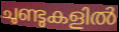
ചുണ്ടുകളിൽ